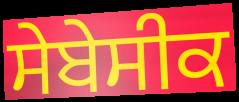
ਸੇਬੇਸੀਕ